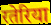
रतेरिया